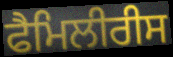
ਫੈਮਿਲੀਰੀਸ